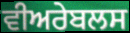
ਵੀਅਰੇਬਲਸ